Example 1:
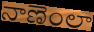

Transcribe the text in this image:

నాణెంలా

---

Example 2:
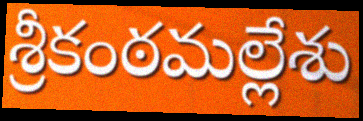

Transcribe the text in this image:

శ్రీకంఠమల్లేశు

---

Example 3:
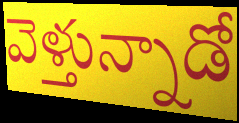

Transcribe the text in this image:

వెళ్తున్నాడో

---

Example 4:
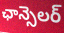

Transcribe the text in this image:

ఛాన్సెలర్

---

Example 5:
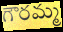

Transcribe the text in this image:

గౌరమ్మ